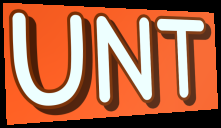
UNT